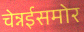
चेन्नईसमोर